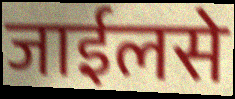
जाईलसे